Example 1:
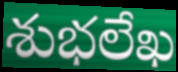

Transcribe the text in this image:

శుభలేఖ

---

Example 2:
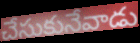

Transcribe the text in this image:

చేసుకునేవాడు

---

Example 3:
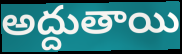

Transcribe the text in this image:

అద్దుతాయి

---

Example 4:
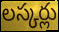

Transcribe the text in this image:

లస్కర్లు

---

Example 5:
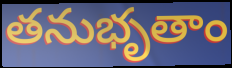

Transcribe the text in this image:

తనుభృతాం